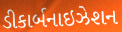
ડીકાર્બનાઇઝેશન